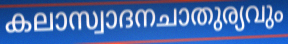
കലാസ്വാദനചാതുര്യവും